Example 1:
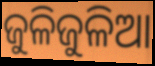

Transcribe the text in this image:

ଜୁଳିଜୁଳିଆ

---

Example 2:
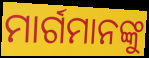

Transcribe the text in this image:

ମାର୍ଗମାନଙ୍କୁ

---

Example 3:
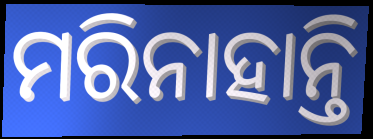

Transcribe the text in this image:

ମରିନାହାନ୍ତି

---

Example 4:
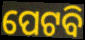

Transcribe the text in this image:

ପେଟବି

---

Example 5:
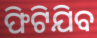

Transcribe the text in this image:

ଫିଟିଯିବ